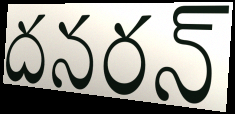
దనరన్